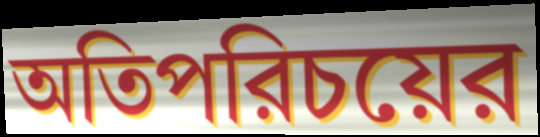
অতিপরিচয়ের